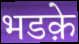
भडक़े